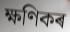
ক্ষণিকৰ